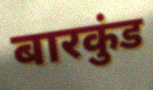
बारकुंड